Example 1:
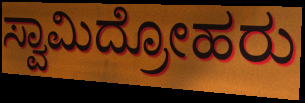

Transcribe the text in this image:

ಸ್ವಾಮಿದ್ರೋಹರು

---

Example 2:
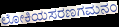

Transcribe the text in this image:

ಲೋಕಿಯಸರಣಗಮನಂ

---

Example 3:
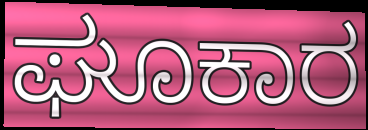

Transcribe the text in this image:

ಘೂಕಾರ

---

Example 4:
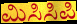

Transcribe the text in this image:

ಮಿಸಿಸಿಪಿ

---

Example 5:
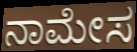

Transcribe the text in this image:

ನಾಮೇಸ